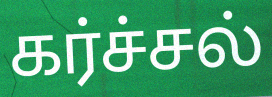
கர்ச்சல்